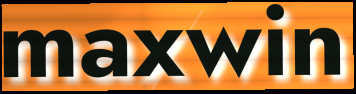
maxwin